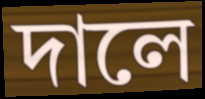
দালে